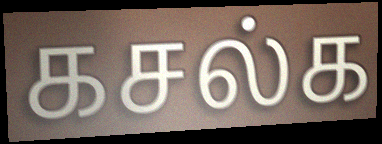
கசல்க